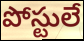
పోస్టులే